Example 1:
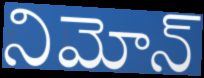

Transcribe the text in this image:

నిమోన్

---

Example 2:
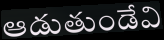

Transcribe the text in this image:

ఆడుతుండేవి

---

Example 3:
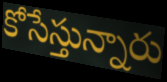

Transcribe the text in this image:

కోసేస్తున్నారు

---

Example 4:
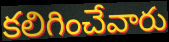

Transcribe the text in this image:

కలిగించేవారు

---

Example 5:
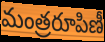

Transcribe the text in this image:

మంత్రరూపిణీ